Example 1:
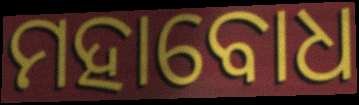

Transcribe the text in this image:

ମହାବୋଧ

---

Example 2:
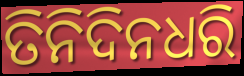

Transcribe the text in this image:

ତିନିଦିନଧରି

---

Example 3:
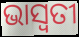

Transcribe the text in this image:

ଭାସ୍ବତୀ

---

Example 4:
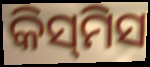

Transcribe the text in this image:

କିସ୍‌ମିସ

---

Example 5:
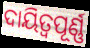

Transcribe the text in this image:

ଦାୟିତ୍ବପୂର୍ଣ୍ଣ